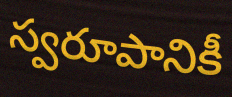
స్వరూపానికీ